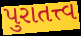
પુરાતત્ત્વ